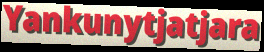
Yankunytjatjara